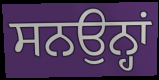
ਸਨਉਨ੍ਹਾਂ